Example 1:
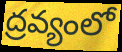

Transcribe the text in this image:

ద్రవ్యంలో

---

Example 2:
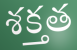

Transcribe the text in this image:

శక్తత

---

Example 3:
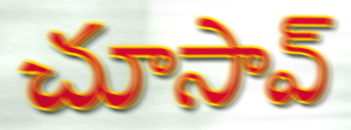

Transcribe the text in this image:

చూసావ్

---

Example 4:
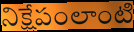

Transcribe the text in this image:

నిక్షేపంలాంటి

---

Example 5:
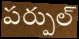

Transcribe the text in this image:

పర్పుల్